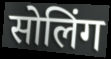
सोलिंग